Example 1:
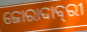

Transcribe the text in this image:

ଜୋରାଦାବ୍‌ରୀ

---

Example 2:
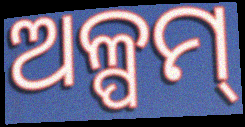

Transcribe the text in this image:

ଅଳ୍ପମ୍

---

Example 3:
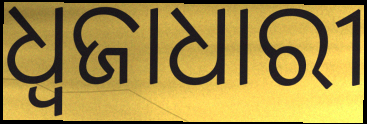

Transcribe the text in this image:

ଧ୍ଵଜାଧାରୀ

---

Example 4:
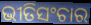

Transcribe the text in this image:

ଭୀତିସଂଚାର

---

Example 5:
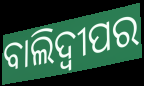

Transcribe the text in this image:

ବାଲିଦ୍ୱୀପର